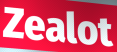
Zealot